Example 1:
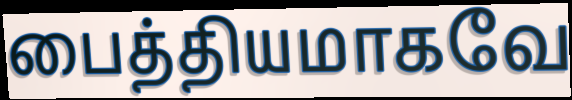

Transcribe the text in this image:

பைத்தியமாகவே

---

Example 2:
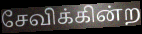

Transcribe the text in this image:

சேவிக்கின்ற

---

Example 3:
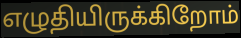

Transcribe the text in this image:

எழுதியிருக்கிறோம்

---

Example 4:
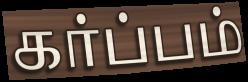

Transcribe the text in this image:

கர்ப்பம்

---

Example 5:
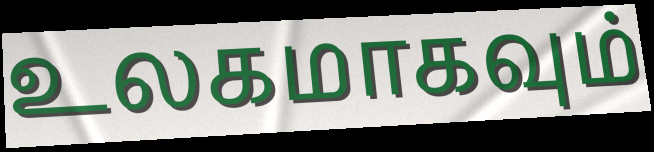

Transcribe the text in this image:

உலகமாகவும்